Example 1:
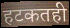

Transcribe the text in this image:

हटकतही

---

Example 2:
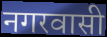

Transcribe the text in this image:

नगरवासी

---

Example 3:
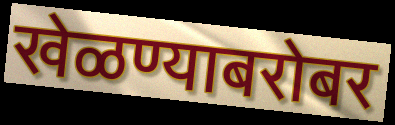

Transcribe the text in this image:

खेळण्याबरोबर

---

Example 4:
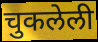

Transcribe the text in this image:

चुकलेली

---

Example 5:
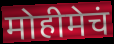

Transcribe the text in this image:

मोहीमेचं